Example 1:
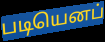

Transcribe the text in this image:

படியெனப்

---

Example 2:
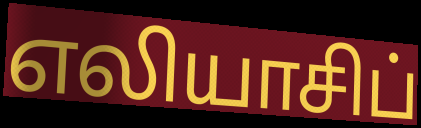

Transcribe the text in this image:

எலியாசிப்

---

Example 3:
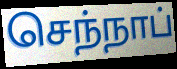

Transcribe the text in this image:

செந்நாப்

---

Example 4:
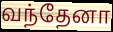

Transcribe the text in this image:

வந்தேனா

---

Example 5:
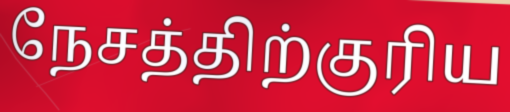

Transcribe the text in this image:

நேசத்திற்குரிய